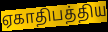
ஏகாதிபத்திய